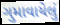
ગુમાવાયેલું